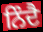
ਨਿੰਦੈ